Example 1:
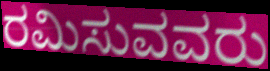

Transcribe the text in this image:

ರಮಿಸುವವರು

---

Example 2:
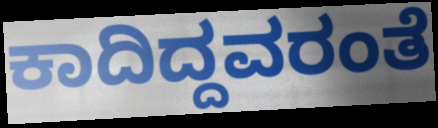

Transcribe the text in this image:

ಕಾದಿದ್ದವರಂತೆ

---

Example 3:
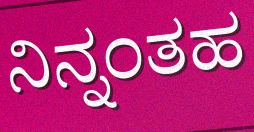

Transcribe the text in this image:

ನಿನ್ನಂತಹ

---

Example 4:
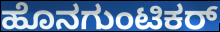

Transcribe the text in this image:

ಹೊನಗುಂಟಿಕರ್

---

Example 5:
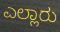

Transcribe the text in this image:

ಎಲ್ಲಾರು